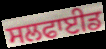
ਸਲਫਾਈਡ